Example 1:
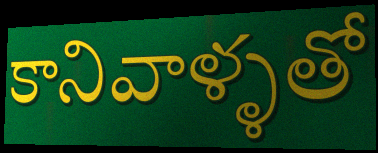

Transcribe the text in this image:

కానివాళ్ళతో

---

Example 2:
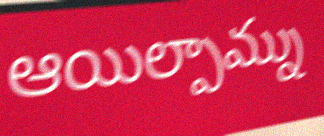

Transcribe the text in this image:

ఆయిల్పామ్ను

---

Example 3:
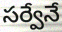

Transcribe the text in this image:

సర్వేనే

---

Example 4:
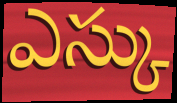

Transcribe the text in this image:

ఎస్కు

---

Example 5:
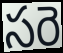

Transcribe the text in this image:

సరె